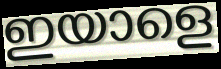
ഇയാളെ